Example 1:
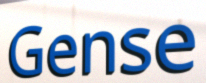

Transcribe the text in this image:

Gense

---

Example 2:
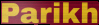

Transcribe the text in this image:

Parikh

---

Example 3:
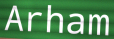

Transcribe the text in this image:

Arham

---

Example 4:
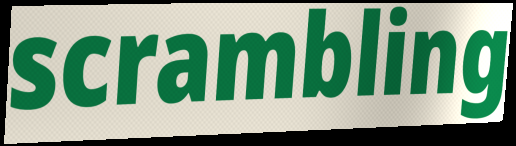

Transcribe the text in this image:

scrambling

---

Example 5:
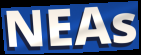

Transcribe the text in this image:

NEAs